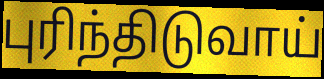
புரிந்திடுவாய்